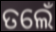
ତଲେଁ